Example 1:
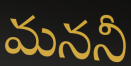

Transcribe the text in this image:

మననీ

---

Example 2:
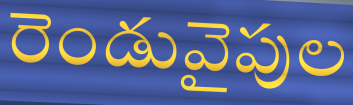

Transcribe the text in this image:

రెండువైపుల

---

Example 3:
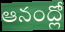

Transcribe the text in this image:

ఆనంద్లో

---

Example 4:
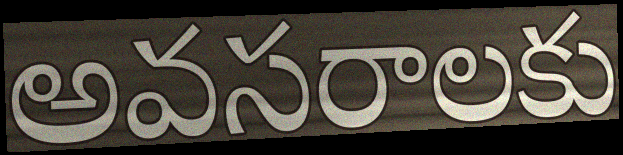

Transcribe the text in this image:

అవసరాలకు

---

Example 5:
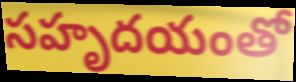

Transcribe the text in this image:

సహృదయంతో